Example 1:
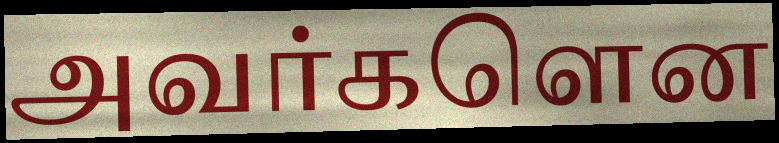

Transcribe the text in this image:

அவர்களென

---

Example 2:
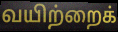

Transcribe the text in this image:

வயிற்றைக்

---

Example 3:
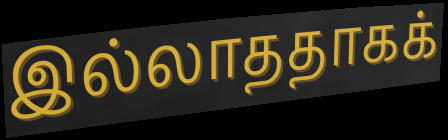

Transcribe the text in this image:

இல்லாததாகக்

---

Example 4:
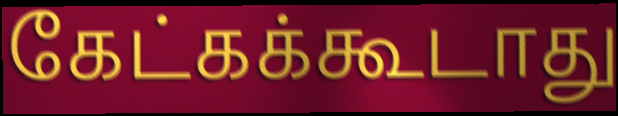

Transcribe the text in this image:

கேட்கக்கூடாது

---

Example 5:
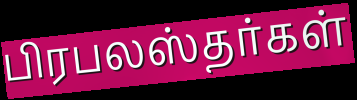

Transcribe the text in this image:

பிரபலஸ்தர்கள்